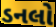
ડનલો